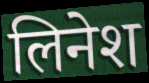
लिनेश